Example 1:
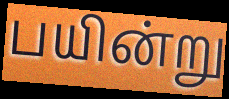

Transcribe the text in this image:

பயின்று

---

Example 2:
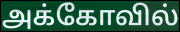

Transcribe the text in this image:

அக்கோவில்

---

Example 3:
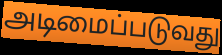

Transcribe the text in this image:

அடிமைப்படுவது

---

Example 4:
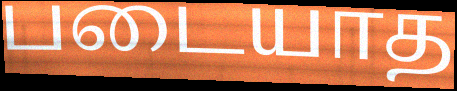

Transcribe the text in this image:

படையாத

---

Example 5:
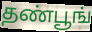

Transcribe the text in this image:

தண்பூங்